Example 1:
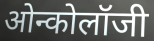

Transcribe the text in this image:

ओन्कोलॉजी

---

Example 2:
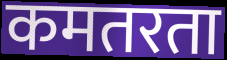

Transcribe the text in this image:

कमतरता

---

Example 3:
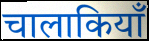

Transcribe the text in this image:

चालाकियाँ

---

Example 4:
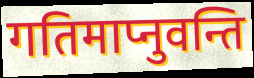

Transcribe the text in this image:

गतिमाप्नुवन्ति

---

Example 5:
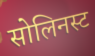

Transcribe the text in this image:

सोलिनस्ट